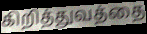
கிறித்துவத்தை